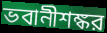
ভবানীশঙ্কর